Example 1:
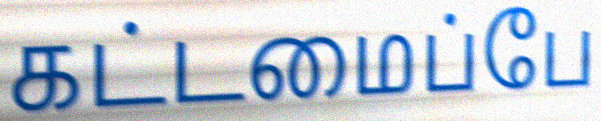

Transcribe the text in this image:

கட்டமைப்பே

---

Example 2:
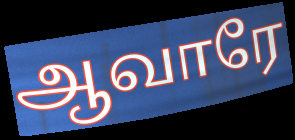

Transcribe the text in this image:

ஆவாரே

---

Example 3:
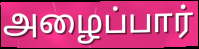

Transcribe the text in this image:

அழைப்பார்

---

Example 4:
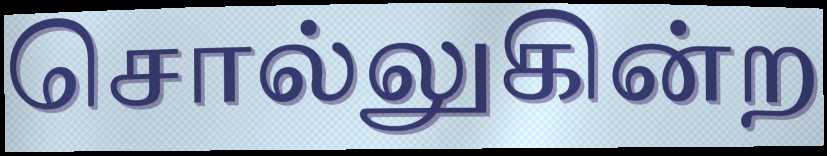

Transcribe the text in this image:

சொல்லுகின்ற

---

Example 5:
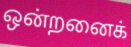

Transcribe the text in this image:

ஒன்றனைக்